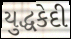
યુદ્ધકેદી